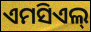
ଏମସିଏଲ୍